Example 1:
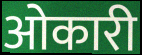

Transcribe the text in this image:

ओकारी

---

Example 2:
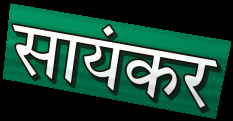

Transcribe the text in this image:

सायंकर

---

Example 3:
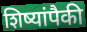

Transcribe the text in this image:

शिष्यांपैकी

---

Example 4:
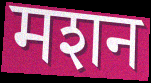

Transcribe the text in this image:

मशन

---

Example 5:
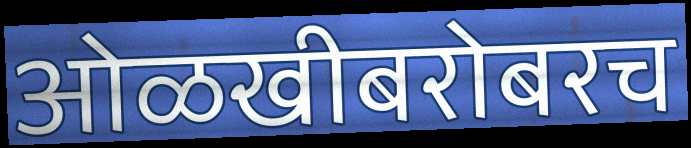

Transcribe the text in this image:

ओळखीबरोबरच